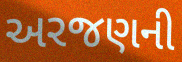
અરજણની